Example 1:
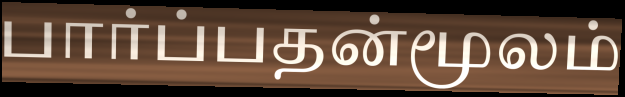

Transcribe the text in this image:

பார்ப்பதன்மூலம்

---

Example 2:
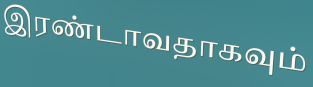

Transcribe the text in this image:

இரண்டாவதாகவும்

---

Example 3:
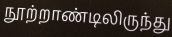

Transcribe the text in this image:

நூற்றாண்டிலிருந்து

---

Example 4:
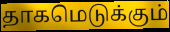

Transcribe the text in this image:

தாகமெடுக்கும்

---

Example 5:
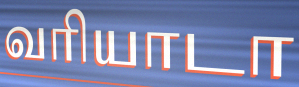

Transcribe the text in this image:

வரியாடா